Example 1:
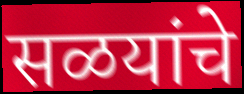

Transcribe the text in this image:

सळयांचे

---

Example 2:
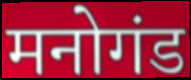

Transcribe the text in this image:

मनोगंड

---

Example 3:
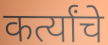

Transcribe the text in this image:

कर्त्यांचे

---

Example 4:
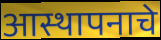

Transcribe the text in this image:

आस्थापनाचे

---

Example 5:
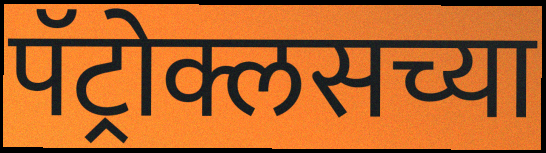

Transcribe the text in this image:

पॅट्रोक्लसच्या